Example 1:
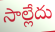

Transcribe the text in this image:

సాల్లేదు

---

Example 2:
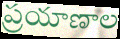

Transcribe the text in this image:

ప్రయాణాల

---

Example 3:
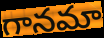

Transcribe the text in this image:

గానమా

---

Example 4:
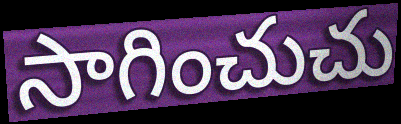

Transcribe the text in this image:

సాగించుచు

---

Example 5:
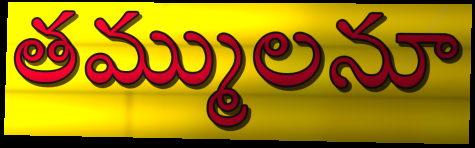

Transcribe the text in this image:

తమ్ములనూ